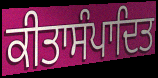
ਕੀਤਾਸੰਪਾਦਿਤ